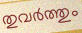
തുവർത്തും